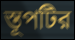
স্তূপটির